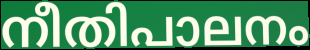
നീതിപാലനം